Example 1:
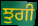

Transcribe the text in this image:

ਝੁਗੀ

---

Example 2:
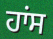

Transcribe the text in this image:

ਹਾਂਸ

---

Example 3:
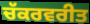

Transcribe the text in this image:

ਚੱਕਰਵਰੀਤ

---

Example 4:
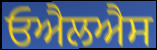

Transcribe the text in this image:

ਓਐਲਐਸ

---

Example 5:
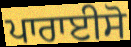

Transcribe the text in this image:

ਪਾਰਾਈਸੋ